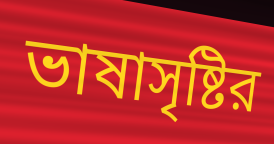
ভাষাসৃষ্টির